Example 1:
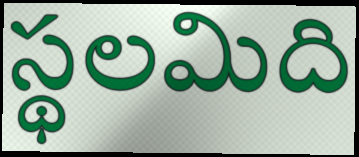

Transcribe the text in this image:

స్థలమిది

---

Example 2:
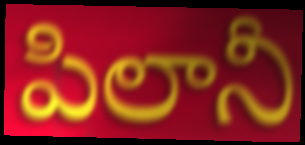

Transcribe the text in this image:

పిలానీ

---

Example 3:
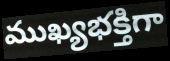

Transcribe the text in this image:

ముఖ్యభక్తిగా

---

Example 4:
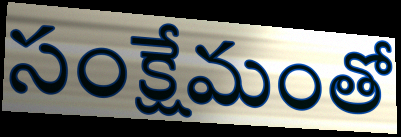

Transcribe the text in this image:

సంక్షేమంతో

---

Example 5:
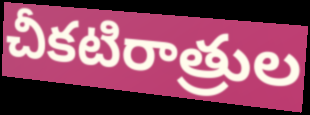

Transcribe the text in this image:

చీకటిరాత్రుల